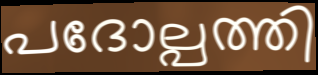
പദോല്പത്തി